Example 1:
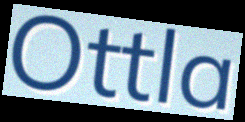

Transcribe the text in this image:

Ottla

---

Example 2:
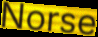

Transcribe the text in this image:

Norse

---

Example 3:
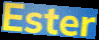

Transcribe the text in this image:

Ester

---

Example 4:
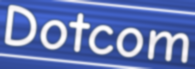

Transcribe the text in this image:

Dotcom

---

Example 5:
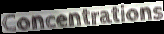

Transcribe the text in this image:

Concentrations